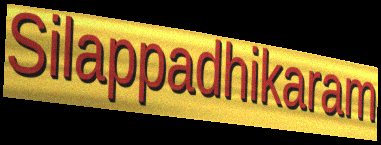
Silappadhikaram